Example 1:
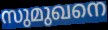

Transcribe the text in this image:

സുമുഖനെ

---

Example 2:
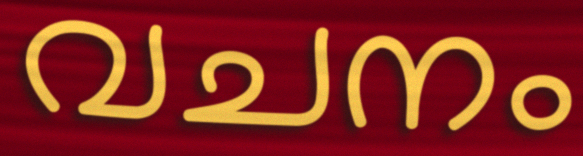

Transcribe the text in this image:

വചനം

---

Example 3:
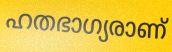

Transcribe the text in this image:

ഹതഭാഗ്യരാണ്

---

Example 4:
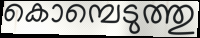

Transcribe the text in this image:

കൊമ്പെടുത്തു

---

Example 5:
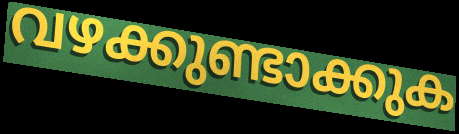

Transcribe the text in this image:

വഴക്കുണ്ടാക്കുക